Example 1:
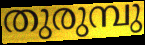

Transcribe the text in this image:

തുരുമ്പു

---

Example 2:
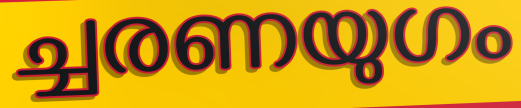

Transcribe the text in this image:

ച്ചരണയുഗം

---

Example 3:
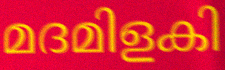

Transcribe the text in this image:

മദമിളകി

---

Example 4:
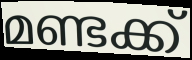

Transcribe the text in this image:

മണ്ടക്ക്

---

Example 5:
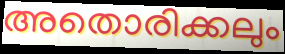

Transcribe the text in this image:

അതൊരിക്കലും